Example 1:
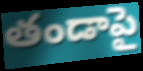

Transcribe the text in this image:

తండాపై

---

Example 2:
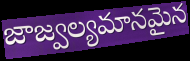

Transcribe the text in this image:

జాజ్వల్యమానమైన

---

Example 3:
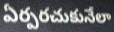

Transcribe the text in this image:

ఏర్పరచుకునేలా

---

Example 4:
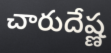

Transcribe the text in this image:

చారుదేష్ణ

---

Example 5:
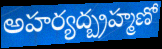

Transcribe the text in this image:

అహర్యద్బ్రహ్మణో